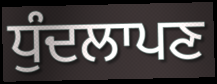
ਧੁੰਦਲਾਪਣ